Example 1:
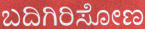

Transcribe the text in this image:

ಬದಿಗಿರಿಸೋಣ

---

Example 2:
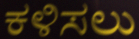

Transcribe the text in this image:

ಕಳಿಸಲು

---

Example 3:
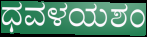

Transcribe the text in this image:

ಧವಳಯಶಂ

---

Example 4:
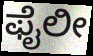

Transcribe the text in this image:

ಫೈಲೀ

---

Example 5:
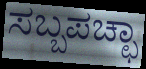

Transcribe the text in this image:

ಸಬ್ಬಪಚ್ಛಾ